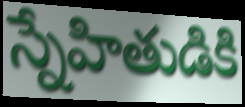
స్నేహితుడికి